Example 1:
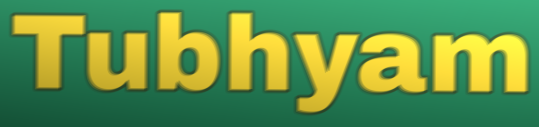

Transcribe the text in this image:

Tubhyam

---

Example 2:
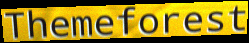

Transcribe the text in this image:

Themeforest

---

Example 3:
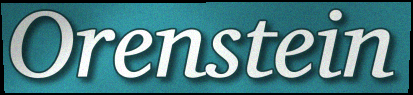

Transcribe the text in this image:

Orenstein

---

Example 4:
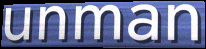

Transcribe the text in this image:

unman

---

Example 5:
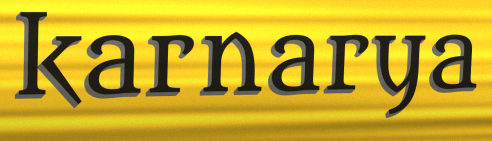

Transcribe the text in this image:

karnarya